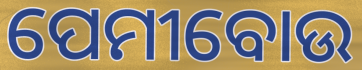
ପେମୀବୋଉ